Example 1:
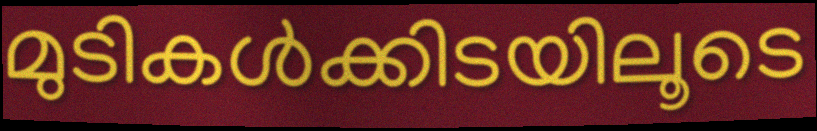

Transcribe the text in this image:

മുടികൾക്കിടയിലൂടെ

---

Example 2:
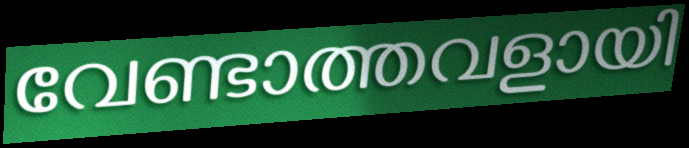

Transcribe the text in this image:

വേണ്ടാത്തവളായി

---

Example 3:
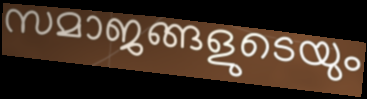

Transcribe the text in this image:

സമാജങ്ങളുടെയും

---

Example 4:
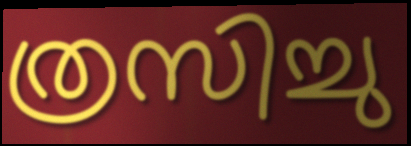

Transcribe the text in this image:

ത്രസിച്ചു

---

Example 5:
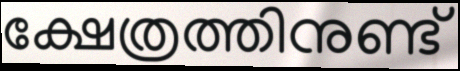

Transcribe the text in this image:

ക്ഷേത്രത്തിനുണ്ട്